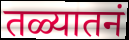
तळ्यातनं